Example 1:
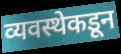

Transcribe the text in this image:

व्यवस्थेकडून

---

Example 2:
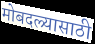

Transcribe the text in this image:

मोबदल्यासाठी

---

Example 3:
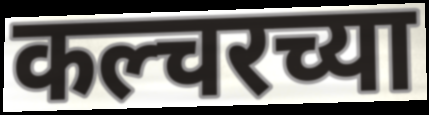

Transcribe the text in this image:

कल्चरच्या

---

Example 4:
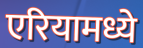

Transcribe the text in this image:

एरियामध्ये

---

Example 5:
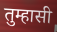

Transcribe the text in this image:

तुम्हासी